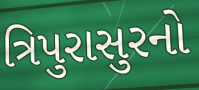
ત્રિપુરાસુરનો